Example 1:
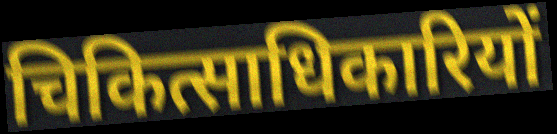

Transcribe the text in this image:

चिकित्साधिकारियों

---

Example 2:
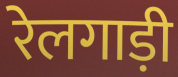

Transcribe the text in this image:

रेलगाड़ी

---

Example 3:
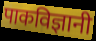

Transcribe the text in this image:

पाकविज्ञानी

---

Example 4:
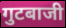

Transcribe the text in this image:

गुटबाजी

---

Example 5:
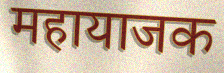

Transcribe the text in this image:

महायाजक